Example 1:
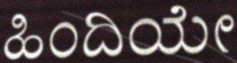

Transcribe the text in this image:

ಹಿಂದಿಯೇ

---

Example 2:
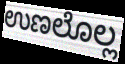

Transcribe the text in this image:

ಉಣಲೊಲ್ಲ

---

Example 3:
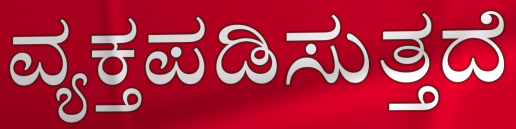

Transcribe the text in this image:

ವ್ಯಕ್ತಪಡಿಸುತ್ತದೆ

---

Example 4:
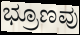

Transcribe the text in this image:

ಭ್ರೂಣವು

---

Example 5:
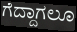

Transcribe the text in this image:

ಗೆದ್ದಾಗಲೂ